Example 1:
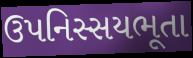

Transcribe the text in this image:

ઉપનિસ્સયભૂતા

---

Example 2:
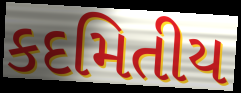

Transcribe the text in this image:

કદમિતીય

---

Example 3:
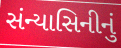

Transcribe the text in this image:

સંન્યાસિનીનું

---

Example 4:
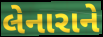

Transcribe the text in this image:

લેનારાને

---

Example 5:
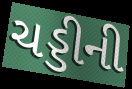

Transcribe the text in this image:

ચડ્ડીની